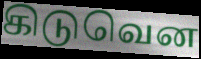
கிடுவென